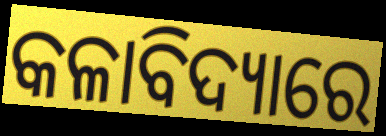
କଳାବିଦ୍ୟାରେ